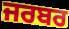
ਜਰਬਰ